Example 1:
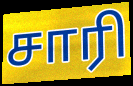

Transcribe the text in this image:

சாரி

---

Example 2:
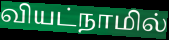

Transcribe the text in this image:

வியட்நாமில்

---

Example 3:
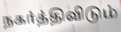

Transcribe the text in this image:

நகர்த்திவிடும்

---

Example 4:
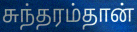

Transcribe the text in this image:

சுந்தரம்தான்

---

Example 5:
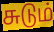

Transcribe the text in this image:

சுடும்